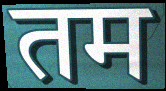
तम